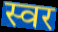
स्‍वर